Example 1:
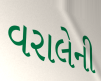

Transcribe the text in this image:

વરાલેની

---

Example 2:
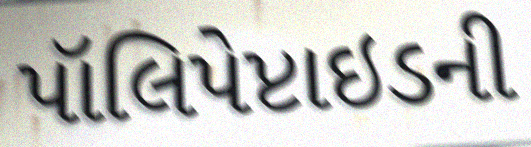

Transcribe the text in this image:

પૉલિપેપ્ટાઇડની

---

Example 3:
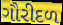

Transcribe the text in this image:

ગૌરીદળ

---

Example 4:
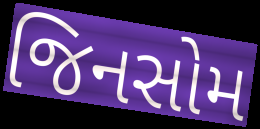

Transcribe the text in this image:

જિનસોમ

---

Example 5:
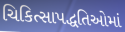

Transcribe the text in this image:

ચિકિત્સાપદ્ધતિઓમાં